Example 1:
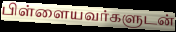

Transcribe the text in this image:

பிள்ளையவர்களுடன்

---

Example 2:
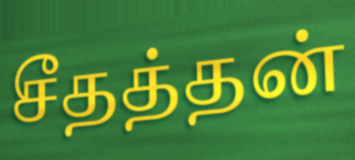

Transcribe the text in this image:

சீதத்தன்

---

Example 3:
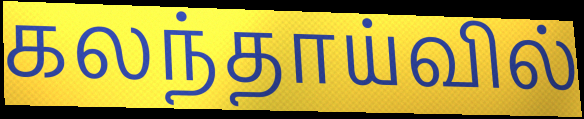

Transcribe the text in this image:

கலந்தாய்வில்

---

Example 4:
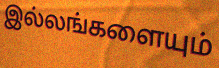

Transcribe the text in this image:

இல்லங்களையும்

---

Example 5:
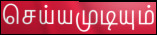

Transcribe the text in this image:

செய்யமுடியும்